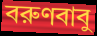
বরুণবাবু